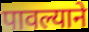
पावल्याने